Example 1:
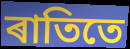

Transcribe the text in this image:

ৰাতিতে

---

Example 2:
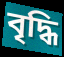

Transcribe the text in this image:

বৃদ্ধি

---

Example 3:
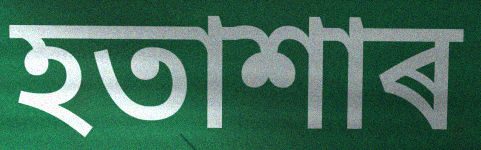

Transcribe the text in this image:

হতাশাৰ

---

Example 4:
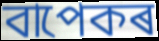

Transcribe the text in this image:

বাপেকৰ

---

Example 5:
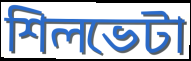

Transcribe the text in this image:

শিলভেটা